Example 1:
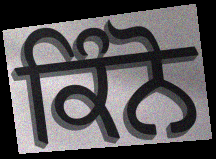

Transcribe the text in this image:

ਕਿੰਨੋ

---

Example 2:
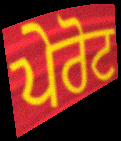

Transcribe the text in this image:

ਪੇਰੋਟ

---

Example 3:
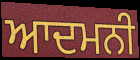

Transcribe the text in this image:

ਆਦਮਨੀ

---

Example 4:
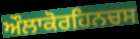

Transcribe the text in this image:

ਔਲਾਕੋਰਹਿਨਚਸ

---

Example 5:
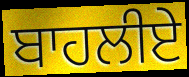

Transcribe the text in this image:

ਬਾਹਲੀਏ